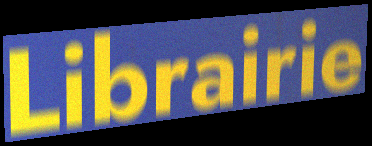
Librairie